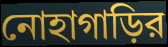
নোহাগাড়ির